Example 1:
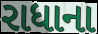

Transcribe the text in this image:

રાધાના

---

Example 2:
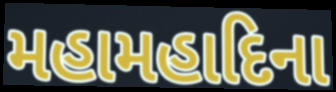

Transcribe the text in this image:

મહામહાદિના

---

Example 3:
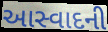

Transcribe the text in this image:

આસ્વાદની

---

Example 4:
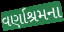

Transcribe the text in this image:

વર્ણાશ્રમના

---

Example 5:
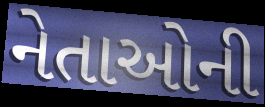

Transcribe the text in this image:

નેતાઓની